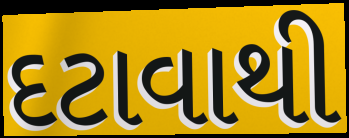
દટાવાથી